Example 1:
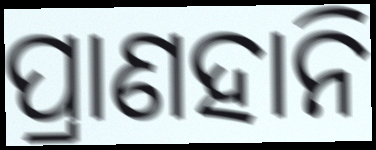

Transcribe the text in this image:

ପ୍ରାଣହାନି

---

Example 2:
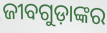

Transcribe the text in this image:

ଜୀବଗୁଡ଼ାଙ୍କର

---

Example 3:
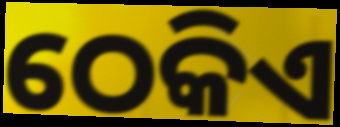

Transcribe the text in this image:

ଠେକିଏ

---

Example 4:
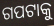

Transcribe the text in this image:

ଗପଟାକୁ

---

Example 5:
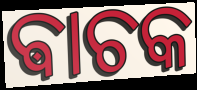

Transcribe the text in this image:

ଵାଚକ